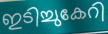
ഇടിച്ചുകേറി